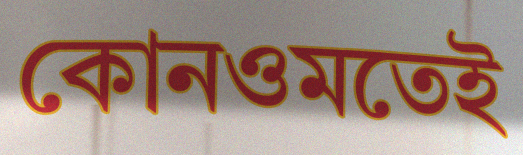
কোনওমতেই